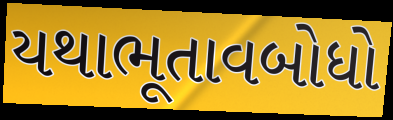
યથાભૂતાવબોધો